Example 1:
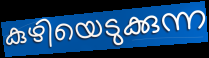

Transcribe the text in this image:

കുഴിയെടുക്കുന്ന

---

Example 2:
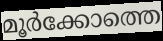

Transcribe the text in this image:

മൂർക്കോത്തെ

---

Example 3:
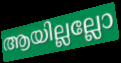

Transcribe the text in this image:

ആയില്ലല്ലോ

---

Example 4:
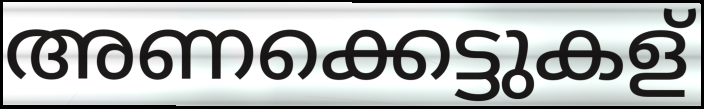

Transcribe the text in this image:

അണക്കെട്ടുകള്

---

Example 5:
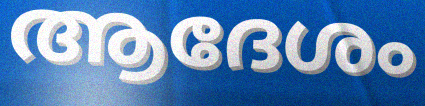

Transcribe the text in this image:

ആദേശം